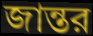
জান্তর